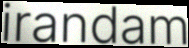
irandam